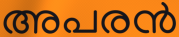
അപരൻ